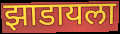
झाडायला